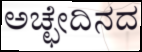
ಅಚ್ಛೇದಿನದ